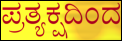
ಪ್ರತ್ಯಕ್ಷದಿಂದ